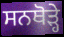
ਸਨਥੋੜ੍ਹੇ